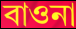
বাওনা